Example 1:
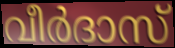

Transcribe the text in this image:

വീർദാസ്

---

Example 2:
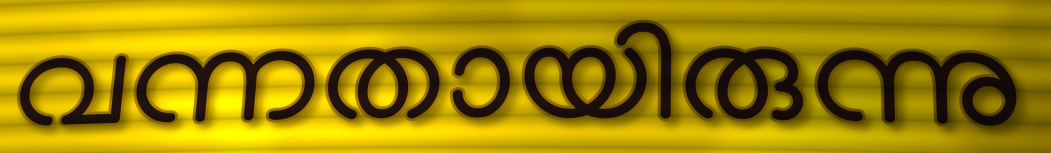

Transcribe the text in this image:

വന്നതായിരുന്നു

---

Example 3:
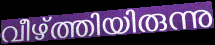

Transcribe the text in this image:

വീഴ്ത്തിയിരുന്നു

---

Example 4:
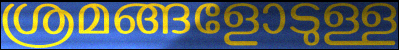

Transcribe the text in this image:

ശ്രമങ്ങളോടുള്ള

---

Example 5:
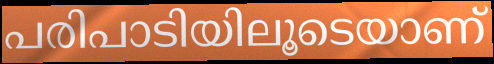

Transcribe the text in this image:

പരിപാടിയിലൂടെയാണ്